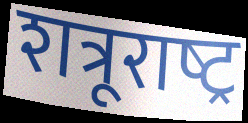
शत्रूराष्ट्र